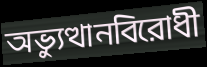
অভ্যুত্থানবিরোধী